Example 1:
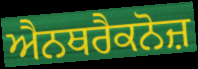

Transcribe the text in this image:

ਐਨਥਰੈਕਨੋਜ਼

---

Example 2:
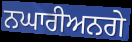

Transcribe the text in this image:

ਨਘਾਰੀਅਨਗੇ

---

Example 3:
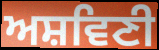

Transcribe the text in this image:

ਅਸ਼ਵਿਣੀ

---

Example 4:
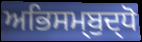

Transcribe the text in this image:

ਅਭਿਸਮ੍ਬੁਦ੍ਧੋ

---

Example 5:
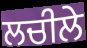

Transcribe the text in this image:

ਲਚੀਲੇ